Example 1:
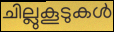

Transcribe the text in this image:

ചില്ലുകൂടുകൾ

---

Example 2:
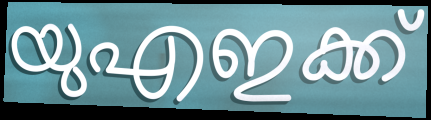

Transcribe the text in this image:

യുഎഇക്ക്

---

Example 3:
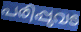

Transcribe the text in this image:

പരിപ്പുവട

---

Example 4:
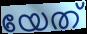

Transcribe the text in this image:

യേത്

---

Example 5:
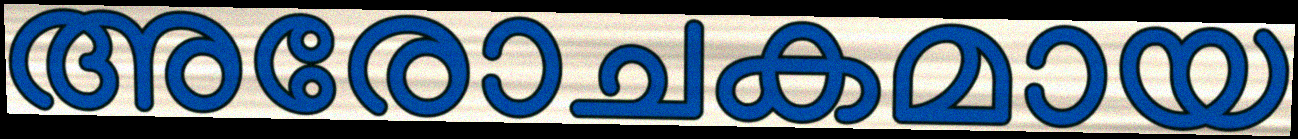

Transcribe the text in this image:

അരോചകമായ